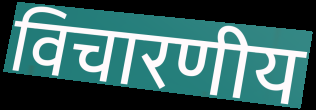
विचारणीय